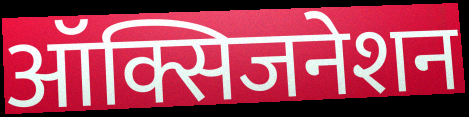
ऑक्सिजनेशन